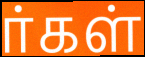
ர்கள்